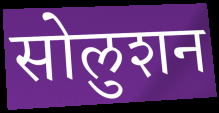
सोलुशन